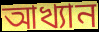
আখ্যান